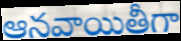
ఆనవాయితీగా